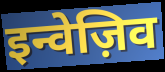
इन्वेज़िव